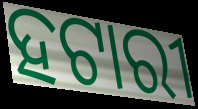
ହଟାରୀ